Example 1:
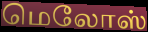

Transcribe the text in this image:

மெலோஸ்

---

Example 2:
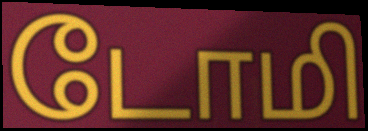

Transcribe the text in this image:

டோமி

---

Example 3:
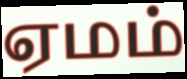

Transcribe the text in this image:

ஏமம்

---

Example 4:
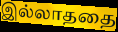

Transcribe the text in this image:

இல்லாததை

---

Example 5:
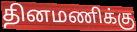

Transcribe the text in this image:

தினமணிக்கு